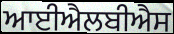
ਆਈਐਲਬੀਐਸ